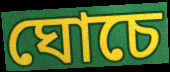
ঘোচে